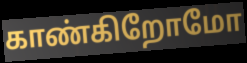
காண்கிறோமோ